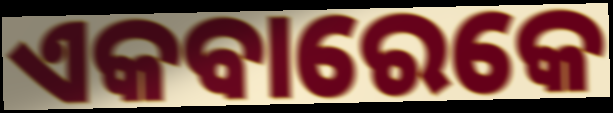
ଏକବାରେକେ